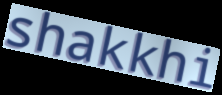
shakkhi